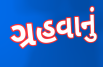
ગ્રહવાનું